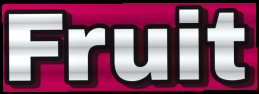
Fruit